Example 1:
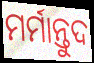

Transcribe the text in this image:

ମର୍ମାନ୍ତୁଦ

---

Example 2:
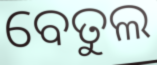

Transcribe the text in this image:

ବେତୁଲ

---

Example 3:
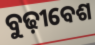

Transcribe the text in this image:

ବୁଢ଼ୀବେଶ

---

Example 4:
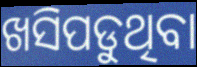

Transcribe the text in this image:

ଖସିପଡୁଥିବା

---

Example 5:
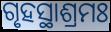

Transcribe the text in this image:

ଗୃହସ୍ଥାଶ୍ରମଃ